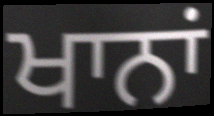
ਖਾਨਾਂ